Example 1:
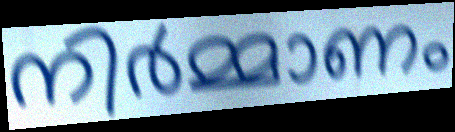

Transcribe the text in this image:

നിർമ്മാണം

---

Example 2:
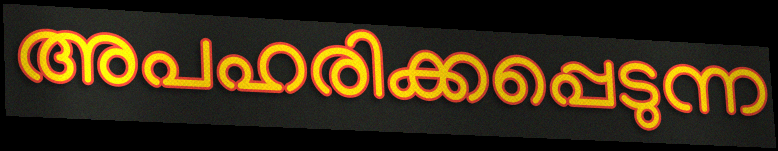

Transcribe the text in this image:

അപഹരിക്കപ്പെടുന്ന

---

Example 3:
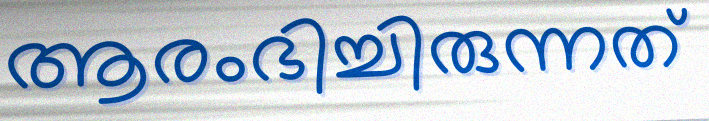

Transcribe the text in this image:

ആരംഭിച്ചിരുന്നത്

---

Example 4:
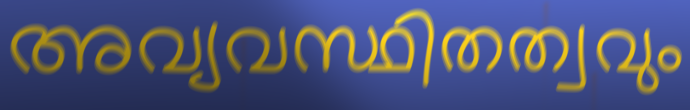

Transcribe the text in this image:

അവ്യവസ്ഥിതത്വവും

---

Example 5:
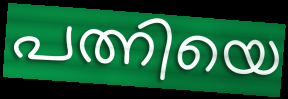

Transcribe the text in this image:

പത്നിയെ